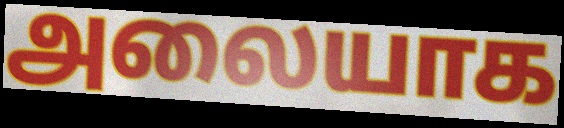
அலையாக